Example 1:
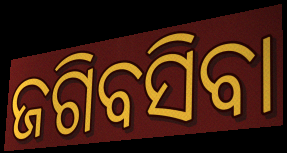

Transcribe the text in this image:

ଜଗିବସିବା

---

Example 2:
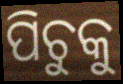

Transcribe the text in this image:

ପିଚୁକୁ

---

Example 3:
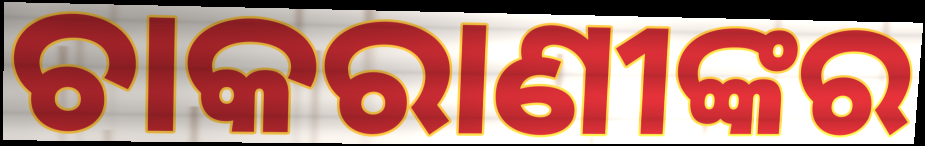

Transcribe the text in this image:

ଚାକରାଣୀଙ୍କର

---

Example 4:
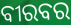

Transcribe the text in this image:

ବୀରବର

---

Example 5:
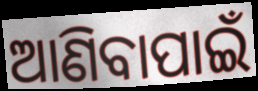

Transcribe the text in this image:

ଆଣିବାପାଇଁ